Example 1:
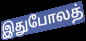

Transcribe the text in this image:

இதுபோலத்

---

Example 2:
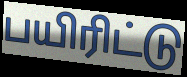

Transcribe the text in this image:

பயிரிட்டு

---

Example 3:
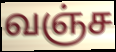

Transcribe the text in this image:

வஞ்ச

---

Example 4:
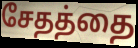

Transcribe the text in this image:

சேதத்தை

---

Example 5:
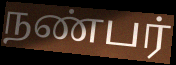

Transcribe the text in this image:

நண்பர்